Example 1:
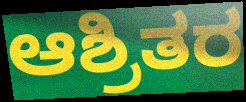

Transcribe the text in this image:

ಆಶ್ರಿತರ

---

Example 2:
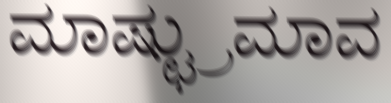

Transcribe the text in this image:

ಮಾಷ್ಟ್ರುಮಾವ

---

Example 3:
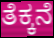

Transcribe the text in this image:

ತೆಕ್ಕನೆ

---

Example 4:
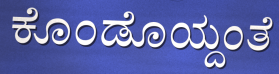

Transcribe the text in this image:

ಕೊಂಡೊಯ್ದಂತೆ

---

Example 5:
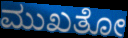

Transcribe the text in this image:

ಮುಖತೋ